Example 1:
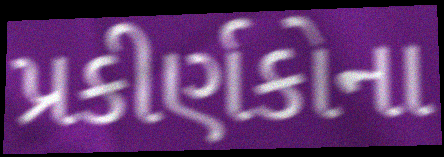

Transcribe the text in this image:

પ્રકીર્ણકોના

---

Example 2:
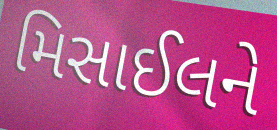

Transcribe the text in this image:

મિસાઈલને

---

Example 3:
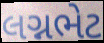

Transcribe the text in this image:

લગ્નભેટ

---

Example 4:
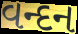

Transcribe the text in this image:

વન્દન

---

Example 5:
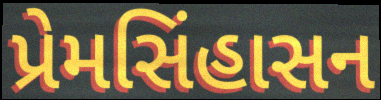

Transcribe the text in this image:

પ્રેમસિંહાસન